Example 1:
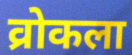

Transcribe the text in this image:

व्रोकला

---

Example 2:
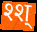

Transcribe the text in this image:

श्श्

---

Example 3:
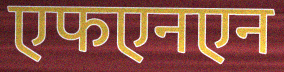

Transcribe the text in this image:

एफएनएन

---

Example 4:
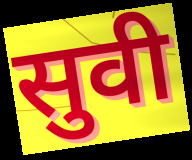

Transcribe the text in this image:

सुवी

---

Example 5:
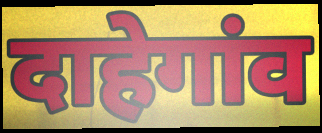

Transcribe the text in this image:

दाहेगांव